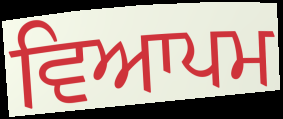
ਵਿਆਪਮ